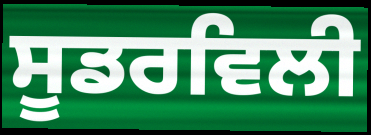
ਸੂਡਰਵਿਲੀ